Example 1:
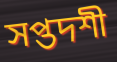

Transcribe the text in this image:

সপ্তদশী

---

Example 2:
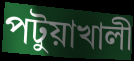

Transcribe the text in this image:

পটুয়াখালী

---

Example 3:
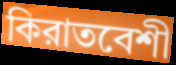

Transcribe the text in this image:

কিরাতবেশী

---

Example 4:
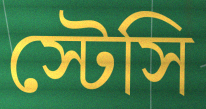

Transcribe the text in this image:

স্টেসি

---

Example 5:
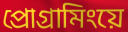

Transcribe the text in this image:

প্রোগ্রামিংয়ে